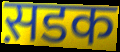
स़डक